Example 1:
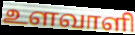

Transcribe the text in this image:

உளவாளி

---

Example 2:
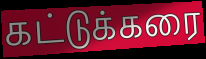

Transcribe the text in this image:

கட்டுக்கரை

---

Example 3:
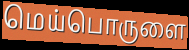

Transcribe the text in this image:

மெய்பொருளை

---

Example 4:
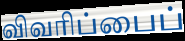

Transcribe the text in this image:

விவரிப்பைப்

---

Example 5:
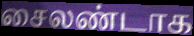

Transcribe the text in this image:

சைலண்டாக